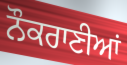
ਨੌਕਰਾਣੀਆਂ